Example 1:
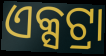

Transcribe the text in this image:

ଏକ୍ସଟ୍ରା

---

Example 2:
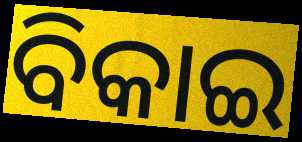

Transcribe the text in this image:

ବିକାଇ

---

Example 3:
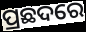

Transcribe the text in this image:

ପ୍ରଛଦରେ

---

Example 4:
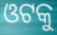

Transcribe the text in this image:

ଓଟକୁ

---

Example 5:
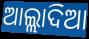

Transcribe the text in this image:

ଆଲ୍ଲାଦିଆ